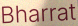
Bharrat